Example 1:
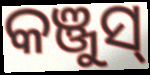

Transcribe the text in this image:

କଞ୍ଜୁସ୍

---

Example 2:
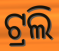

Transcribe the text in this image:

ଟ୍ରଲି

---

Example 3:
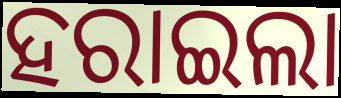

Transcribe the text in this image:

ହରାଇଲା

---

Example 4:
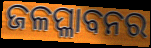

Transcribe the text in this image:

ଜଳପ୍ଳାବନର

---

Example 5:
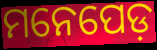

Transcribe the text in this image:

ମନେପେଡ଼